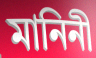
মানিনী